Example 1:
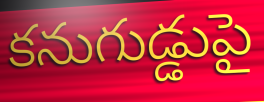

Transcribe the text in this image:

కనుగుడ్డుపై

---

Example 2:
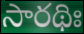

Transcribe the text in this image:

సారథిః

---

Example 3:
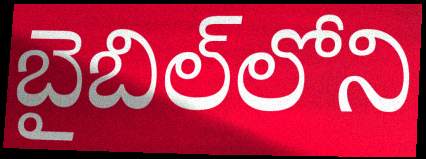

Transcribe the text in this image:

బైబిల్‌లోని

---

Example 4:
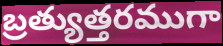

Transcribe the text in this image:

బ్రత్యుత్తరముగా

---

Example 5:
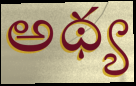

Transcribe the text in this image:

అథ్య